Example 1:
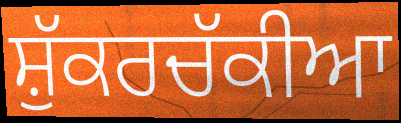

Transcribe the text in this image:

ਸ਼ੁੱਕਰਚੱਕੀਆ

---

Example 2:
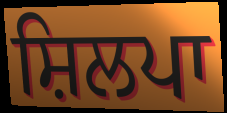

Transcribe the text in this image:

ਸ਼ਿਲਪਾ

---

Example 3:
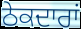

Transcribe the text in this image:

ਠੇਕਦਾਰਾਂ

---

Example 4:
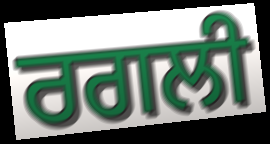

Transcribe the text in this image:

ਰਗਲੀ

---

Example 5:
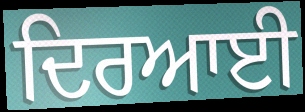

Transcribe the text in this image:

ਦਿਰਆਈ